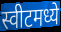
स्वीटमध्ये